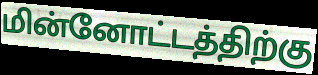
மின்னோட்டத்திற்கு